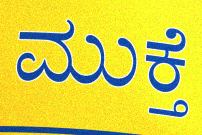
ಮುಕ್ತೆ